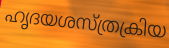
ഹൃദയശസ്ത്രക്രിയ